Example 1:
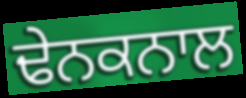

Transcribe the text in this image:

ਢੇਨਕਨਾਲ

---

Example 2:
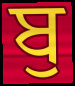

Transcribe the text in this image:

ਬੁ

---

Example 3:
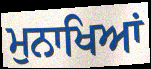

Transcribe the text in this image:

ਮੁਨਾਖਿਆਂ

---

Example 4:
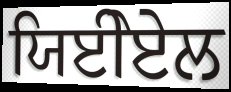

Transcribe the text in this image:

ਯਿਈੇਏਲ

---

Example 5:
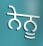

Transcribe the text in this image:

ਨੇਨੂ